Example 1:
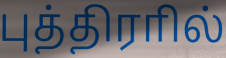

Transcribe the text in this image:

புத்திரரில்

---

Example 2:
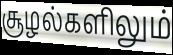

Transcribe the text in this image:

சூழல்களிலும்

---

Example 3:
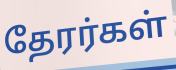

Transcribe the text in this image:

தேரர்கள்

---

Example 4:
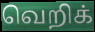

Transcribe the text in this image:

வெறிக்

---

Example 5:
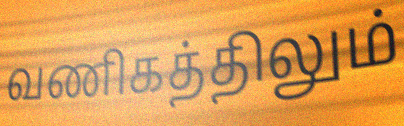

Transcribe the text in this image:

வணிகத்திலும்